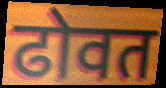
ढोवत